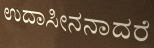
ಉದಾಸೀನನಾದರೆ